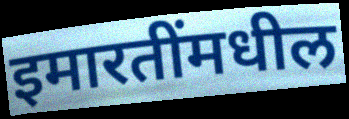
इमारतींमधील